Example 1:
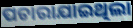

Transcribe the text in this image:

ପଚାରାଯାଇଥିଲା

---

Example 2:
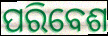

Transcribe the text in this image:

ପରିବେଶ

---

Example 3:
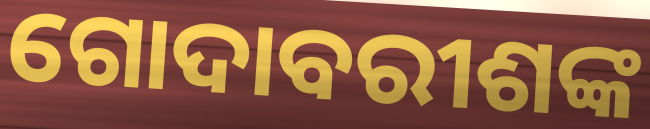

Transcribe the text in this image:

ଗୋଦାବରୀଶଙ୍କ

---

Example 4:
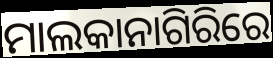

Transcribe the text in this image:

ମାଲକାନାଗିରିରେ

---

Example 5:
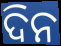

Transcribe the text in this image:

ଦିନ